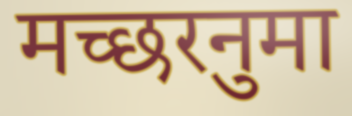
मच्छरनुमा